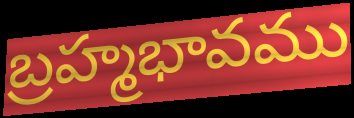
బ్రహ్మభావము